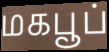
மகபூப்